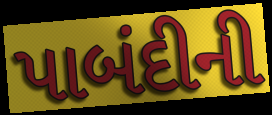
પાબંદીની